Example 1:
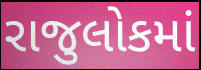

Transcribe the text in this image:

રાજુલોકમાં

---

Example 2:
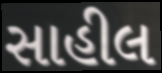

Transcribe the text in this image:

સાહીલ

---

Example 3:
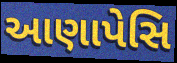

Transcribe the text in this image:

આણાપેસિ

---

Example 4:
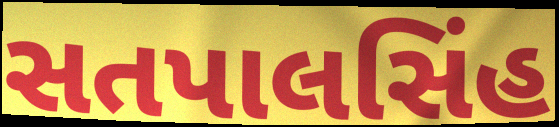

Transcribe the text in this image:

સતપાલસિંહ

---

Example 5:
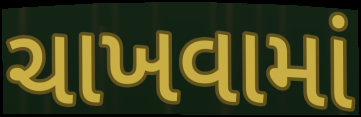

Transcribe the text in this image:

ચાખવામાં